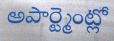
అపార్ట్మెంట్లో